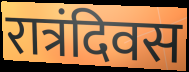
रात्रंदिवस